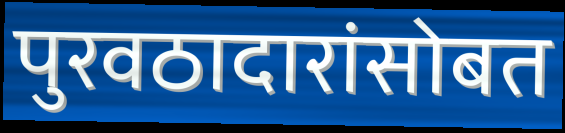
पुरवठादारांसोबत